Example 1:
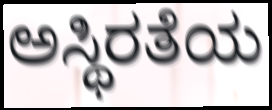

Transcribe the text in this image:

ಅಸ್ಥಿರತೆಯ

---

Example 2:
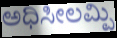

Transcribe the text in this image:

ಅಧಿಸೀಲಮ್ಪಿ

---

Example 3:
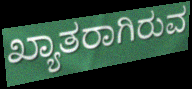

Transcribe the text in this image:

ಖ್ಯಾತರಾಗಿರುವ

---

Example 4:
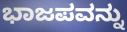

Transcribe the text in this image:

ಭಾಜಪವನ್ನು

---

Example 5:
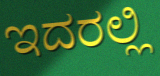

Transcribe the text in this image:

ಇದರಲ್ಲಿ